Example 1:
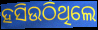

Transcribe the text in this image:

ହସିଉଠିଥିଲେ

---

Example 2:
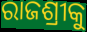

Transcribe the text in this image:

ରାଜଶ୍ରୀକୁ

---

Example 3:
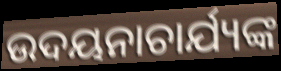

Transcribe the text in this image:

ଉଦୟନାଚାର୍ଯ୍ୟଙ୍କ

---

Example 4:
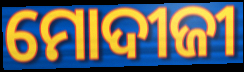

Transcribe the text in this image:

ମୋଦୀଜୀ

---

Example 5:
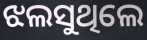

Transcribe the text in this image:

ଝଲସୁଥିଲେ